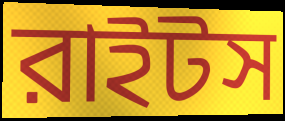
রাইটস